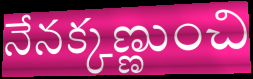
నేనక్కణ్ణుంచి